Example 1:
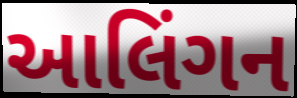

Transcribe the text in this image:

આલિંગન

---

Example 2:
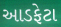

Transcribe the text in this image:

આડફેટા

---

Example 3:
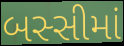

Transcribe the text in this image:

બસ્સીમાં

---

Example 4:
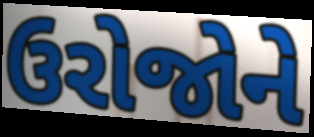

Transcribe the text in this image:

ઉરોજોને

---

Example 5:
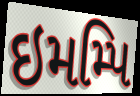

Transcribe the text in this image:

ઇમમ્પિ